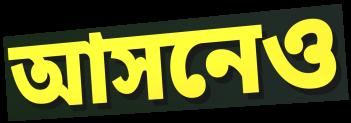
আসনেও